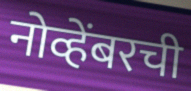
नोव्हेंबरची